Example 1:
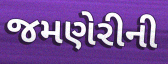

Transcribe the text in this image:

જમણેરીની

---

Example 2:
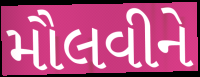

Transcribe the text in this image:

મૌલવીને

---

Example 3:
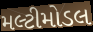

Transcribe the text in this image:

મલ્ટીમોડલ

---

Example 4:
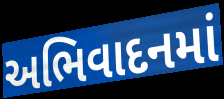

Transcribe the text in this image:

અભિવાદનમાં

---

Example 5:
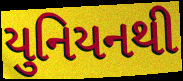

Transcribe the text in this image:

યુનિયનથી